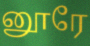
னூரே